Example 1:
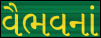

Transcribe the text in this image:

વૈભવનાં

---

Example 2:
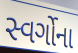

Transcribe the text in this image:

સ્વર્ગોના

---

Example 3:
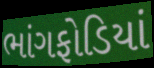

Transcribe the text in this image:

ભાંગફોડિયાં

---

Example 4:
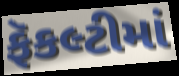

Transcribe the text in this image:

ફૅકલ્ટીમાં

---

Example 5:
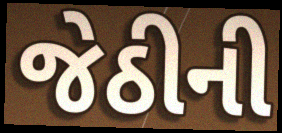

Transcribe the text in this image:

જેઠીની